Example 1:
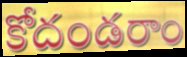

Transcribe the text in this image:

కోదండరాం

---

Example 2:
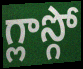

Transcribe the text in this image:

గ్లాస్గో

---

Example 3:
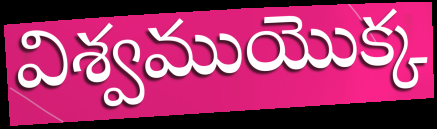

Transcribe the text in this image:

విశ్వముయొక్క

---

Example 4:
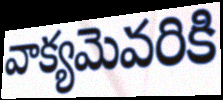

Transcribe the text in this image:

వాక్యమెవరికి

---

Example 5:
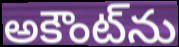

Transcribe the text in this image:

అకౌంట్‌ను